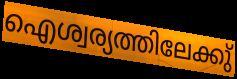
ഐശ്വര്യത്തിലേക്കു്